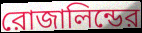
রোজালিন্ডের